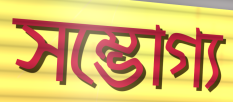
সম্ভোগ্য